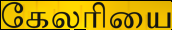
கேலரியை